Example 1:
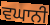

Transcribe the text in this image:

ਵਘਾਨੀ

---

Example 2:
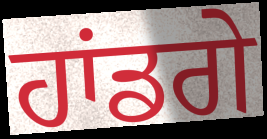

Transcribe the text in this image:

ਹਾਂਡਗੇ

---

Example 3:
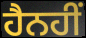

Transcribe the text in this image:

ਹੈਨਹੀਂ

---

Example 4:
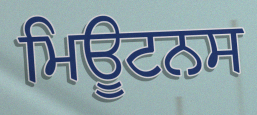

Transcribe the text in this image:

ਮਿਊਟਨਸ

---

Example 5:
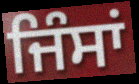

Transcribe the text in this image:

ਜਿੰਸਾਂ